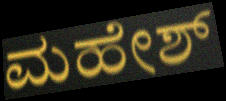
ಮಹೇಶ್